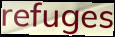
refuges